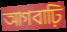
আগবাঢ়ি